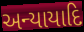
અન્યાયાદિ